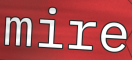
mire